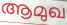
ആമുഖ